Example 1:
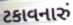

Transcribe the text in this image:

ટકાવનારું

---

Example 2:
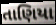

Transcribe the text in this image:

તાણિયા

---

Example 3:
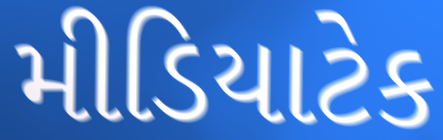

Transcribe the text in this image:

મીડિયાટેક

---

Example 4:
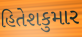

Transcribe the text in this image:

હિતેશકુમાર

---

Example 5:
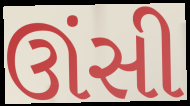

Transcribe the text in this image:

ઊંસી